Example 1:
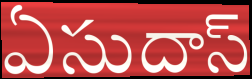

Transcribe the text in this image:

ఏసుదాస్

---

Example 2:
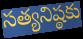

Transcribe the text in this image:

సత్యనిష్ఠకు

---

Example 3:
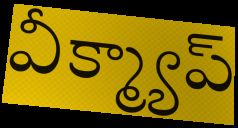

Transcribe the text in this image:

వీక్మ్యాప్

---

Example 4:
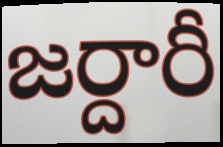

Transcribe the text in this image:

జర్దారీ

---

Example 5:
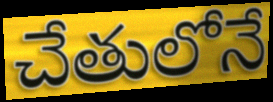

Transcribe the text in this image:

చేతులోనే